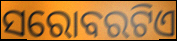
ସରୋବରଟିଏ